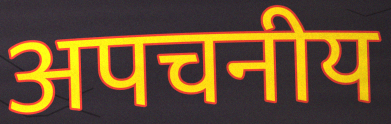
अपचनीय